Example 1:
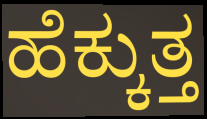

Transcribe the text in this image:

ಹೆಕ್ಕುತ್ತ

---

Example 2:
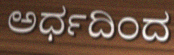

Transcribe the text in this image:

ಅರ್ಧದಿಂದ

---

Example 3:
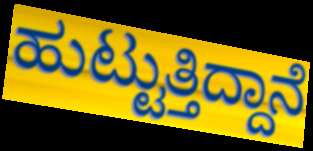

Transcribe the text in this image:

ಹುಟ್ಟುತ್ತಿದ್ದಾನೆ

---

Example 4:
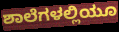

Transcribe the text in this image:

ಶಾಲೆಗಳಲ್ಲಿಯೂ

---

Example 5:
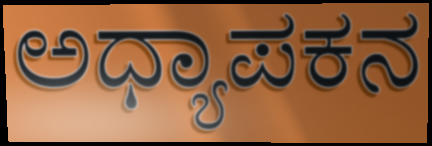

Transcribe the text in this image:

ಅಧ್ಯಾಪಕನ